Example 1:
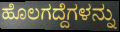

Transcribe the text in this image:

ಹೊಲಗದ್ದೆಗಳನ್ನು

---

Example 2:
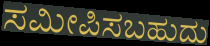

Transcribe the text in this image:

ಸಮೀಪಿಸಬಹುದು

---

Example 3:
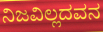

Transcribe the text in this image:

ನಿಜವಿಲ್ಲದವನ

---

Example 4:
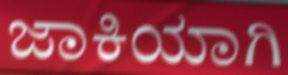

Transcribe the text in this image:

ಜಾಕಿಯಾಗಿ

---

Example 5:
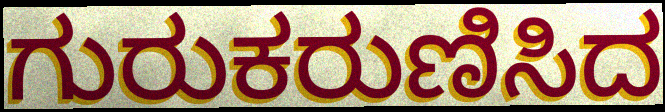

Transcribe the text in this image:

ಗುರುಕರುಣಿಸಿದ